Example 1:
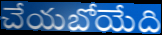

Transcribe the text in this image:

చేయబోయేది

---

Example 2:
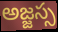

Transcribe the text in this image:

అజ్జస్స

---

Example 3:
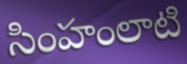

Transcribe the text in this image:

సింహంలాటి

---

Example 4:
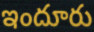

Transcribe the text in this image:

ఇందూరు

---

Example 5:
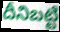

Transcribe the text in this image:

దీనిబట్టి